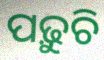
ପଢ଼ୁଚି